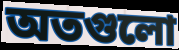
অতগুলো